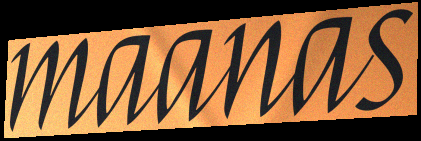
maanas